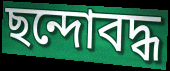
ছন্দোবদ্ধ